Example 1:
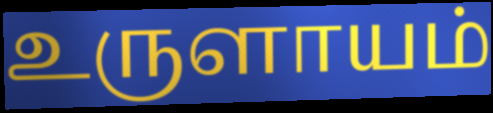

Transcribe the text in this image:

உருளாயம்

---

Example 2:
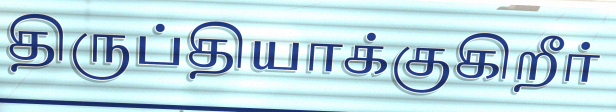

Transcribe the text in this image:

திருப்தியாக்குகிறீர்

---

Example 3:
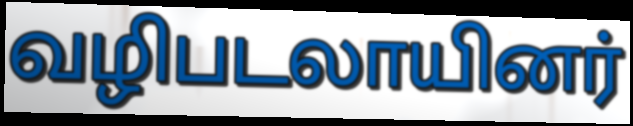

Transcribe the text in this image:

வழிபடலாயினர்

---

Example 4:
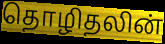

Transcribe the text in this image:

தொழிதலின்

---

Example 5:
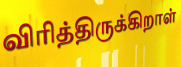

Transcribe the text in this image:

விரித்திருக்கிறாள்